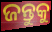
ଜନ୍ତୁକୁ